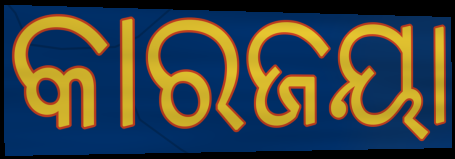
କାରଜୟା